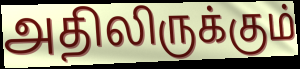
அதிலிருக்கும்